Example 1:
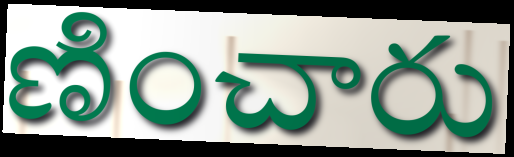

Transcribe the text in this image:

ణించారు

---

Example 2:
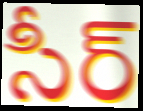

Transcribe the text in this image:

సీర్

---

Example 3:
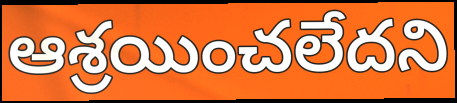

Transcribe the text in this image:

ఆశ్రయించలేదని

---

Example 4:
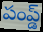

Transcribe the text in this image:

పంప్డ్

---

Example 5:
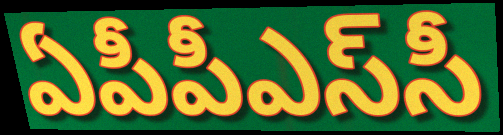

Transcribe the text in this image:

ఏపీపీఎస్‌సీ